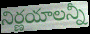
నిర్ణయాలన్నీ